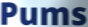
Pums